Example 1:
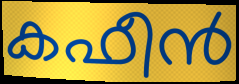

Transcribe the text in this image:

കഫീൻ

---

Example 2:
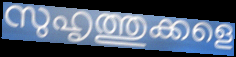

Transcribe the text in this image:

സുഹൃത്തുക്കളെ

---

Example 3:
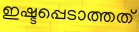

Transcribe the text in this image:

ഇഷ്ടപ്പെടാത്തത്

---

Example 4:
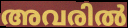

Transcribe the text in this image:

അവരിൽ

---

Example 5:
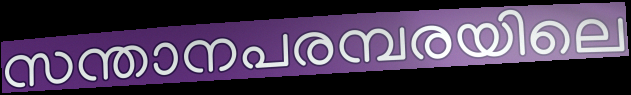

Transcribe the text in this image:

സന്താനപരമ്പരയിലെ